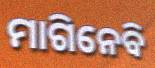
ମାଗିନେବି